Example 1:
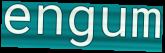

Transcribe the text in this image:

engum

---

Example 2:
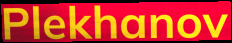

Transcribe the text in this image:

Plekhanov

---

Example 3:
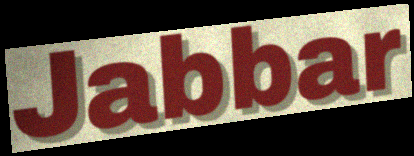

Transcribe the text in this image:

Jabbar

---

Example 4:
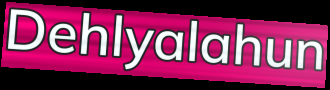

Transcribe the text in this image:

Dehlyalahun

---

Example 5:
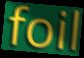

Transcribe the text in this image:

foil